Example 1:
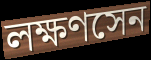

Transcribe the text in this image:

লক্ষণসেন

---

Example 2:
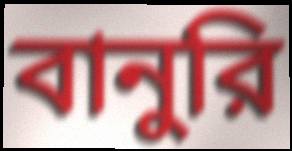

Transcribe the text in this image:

বানুরি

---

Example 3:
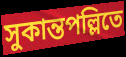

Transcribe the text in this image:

সুকান্তপল্লিতে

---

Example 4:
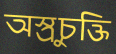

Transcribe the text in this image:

অস্ত্রচুক্তি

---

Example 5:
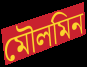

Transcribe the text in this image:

মৌলমিন